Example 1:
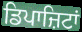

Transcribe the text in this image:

ਡਿਪਾਜ਼ਿਟਾਂ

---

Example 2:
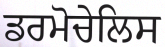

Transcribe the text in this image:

ਡਰਮੋਚੇਲਿਸ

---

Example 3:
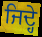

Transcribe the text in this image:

ਜਿਦ੍ਹੇ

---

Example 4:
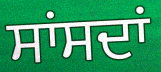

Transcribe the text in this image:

ਸਾਂਸਦਾਂ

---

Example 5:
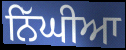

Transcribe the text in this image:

ਨਿੱਘੀਆ